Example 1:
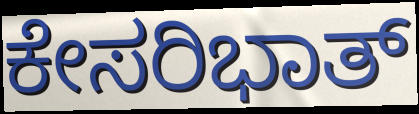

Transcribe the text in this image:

ಕೇಸರಿಭಾತ್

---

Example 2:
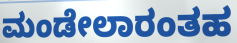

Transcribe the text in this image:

ಮಂಡೇಲಾರಂತಹ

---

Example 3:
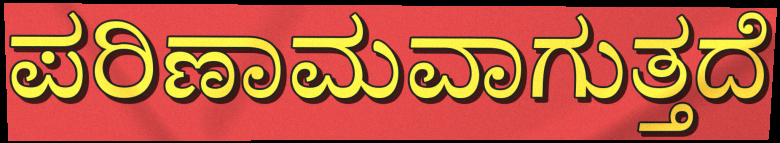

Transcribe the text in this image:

ಪರಿಣಾಮವಾಗುತ್ತದೆ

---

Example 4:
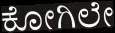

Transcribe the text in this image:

ಕೋಗಿಲೇ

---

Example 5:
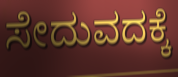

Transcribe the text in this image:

ಸೇದುವದಕ್ಕೆ